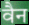
वैन